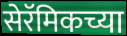
सेरॅमिकच्या